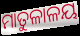
ମାତୁଳାଳୟ